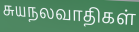
சுயநலவாதிகள்